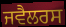
ਜਵੈਲਰਸ